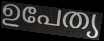
ഉപേത്യ